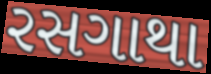
રસગાથા